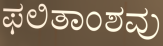
ಫಲಿತಾಂಶವು